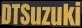
DTSuzuki